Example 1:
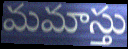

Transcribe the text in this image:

మమాస్తు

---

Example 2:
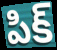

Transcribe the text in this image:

పిక్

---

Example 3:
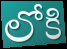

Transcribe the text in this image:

లోకి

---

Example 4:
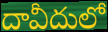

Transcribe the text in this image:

దావీదులో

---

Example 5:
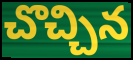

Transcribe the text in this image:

చొచ్చిన